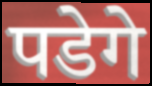
पडेगे